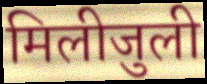
मिलीजुली